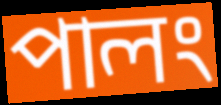
পালং